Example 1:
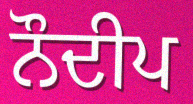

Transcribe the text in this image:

ਨੌਦੀਪ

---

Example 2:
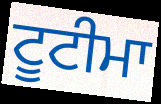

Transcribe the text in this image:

ਟੂਟੀਮਾ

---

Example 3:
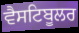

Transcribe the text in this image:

ਵੈਸਟਿਬੂਲਰ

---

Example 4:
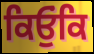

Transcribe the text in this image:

ਕਿਓੁਂਕਿ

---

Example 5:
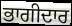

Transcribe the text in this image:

ਭਾਗੀਦਾਰ